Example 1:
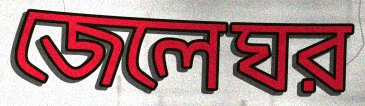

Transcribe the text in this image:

জেলেঘর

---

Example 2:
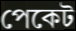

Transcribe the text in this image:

পেকেট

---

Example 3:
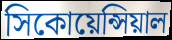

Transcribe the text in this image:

সিকোয়েন্সিয়াল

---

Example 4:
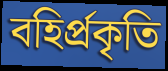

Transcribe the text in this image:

বহির্প্রকৃতি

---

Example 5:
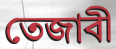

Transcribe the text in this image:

তেজাবী